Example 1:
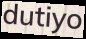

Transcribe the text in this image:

dutiyo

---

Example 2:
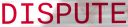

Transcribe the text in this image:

DISPUTE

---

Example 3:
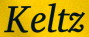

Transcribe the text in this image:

Keltz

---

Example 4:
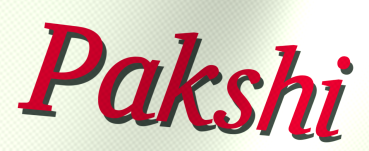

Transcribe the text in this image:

Pakshi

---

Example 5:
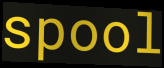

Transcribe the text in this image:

spool